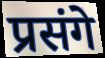
प्रसंगे